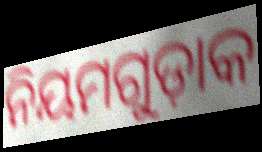
ନିୟମଗୁଡ଼ାକ